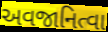
અવજાનિત્વા